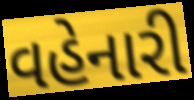
વહેનારી